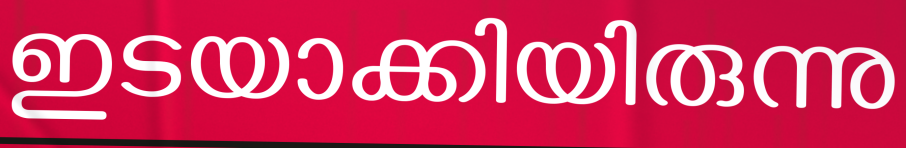
ഇടയാക്കിയിരുന്നു